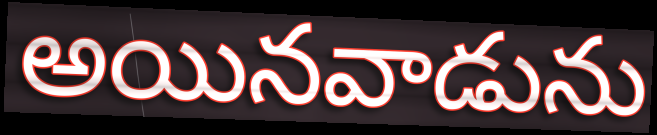
అయినవాడును